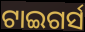
ଟାଇଗର୍ସ